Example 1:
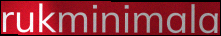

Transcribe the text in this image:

rukminimala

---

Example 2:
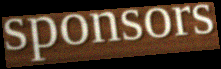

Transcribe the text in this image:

sponsors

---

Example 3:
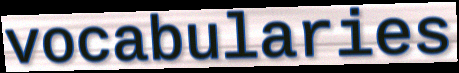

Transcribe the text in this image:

vocabularies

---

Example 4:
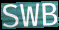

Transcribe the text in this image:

SWB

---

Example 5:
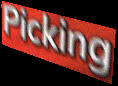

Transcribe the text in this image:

Picking